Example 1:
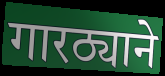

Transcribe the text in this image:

गारठ्याने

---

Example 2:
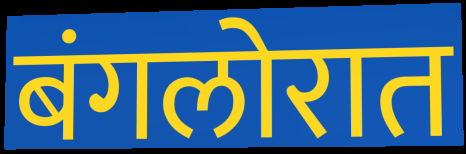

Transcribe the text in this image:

बंगलोरात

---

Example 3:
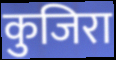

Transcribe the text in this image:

कुजिरा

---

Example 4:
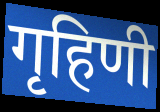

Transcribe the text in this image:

गृहिणी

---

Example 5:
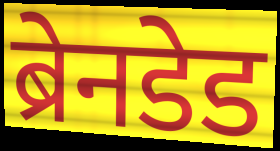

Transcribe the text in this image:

ब्रेनडेड